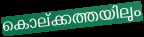
കൊല്ക്കത്തയിലും